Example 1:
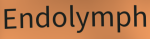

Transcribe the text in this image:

Endolymph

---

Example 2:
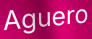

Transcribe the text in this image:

Aguero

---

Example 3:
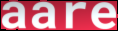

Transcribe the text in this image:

aare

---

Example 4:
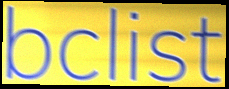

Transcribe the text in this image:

bclist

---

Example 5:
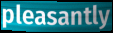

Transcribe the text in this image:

pleasantly